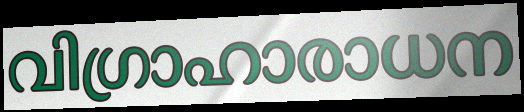
വിഗ്രാഹാരാധന